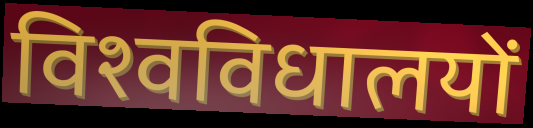
विश्वविधालयों